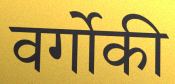
वर्गोकी